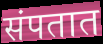
संपतात